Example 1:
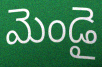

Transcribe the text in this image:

మెండై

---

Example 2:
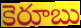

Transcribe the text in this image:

కెరూబు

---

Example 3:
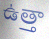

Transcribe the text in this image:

ఉత్తా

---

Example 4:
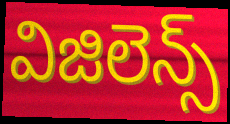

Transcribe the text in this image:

విజిలెన్స్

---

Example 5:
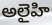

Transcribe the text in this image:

అలైహి